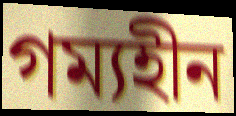
গম্যহীন